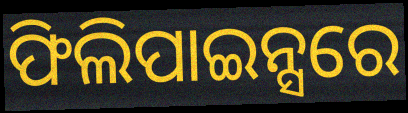
ଫିଲିପାଇନ୍ସରେ